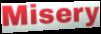
Misery